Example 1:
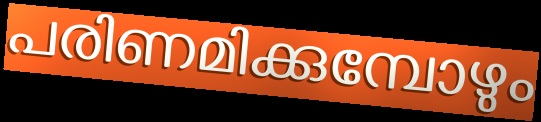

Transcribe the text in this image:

പരിണമിക്കുമ്പോഴും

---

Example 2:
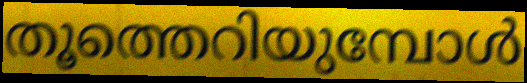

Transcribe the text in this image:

തൂത്തെറിയുമ്പോൾ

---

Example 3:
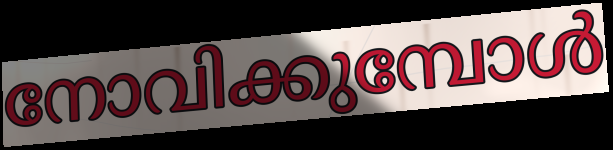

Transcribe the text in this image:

നോവിക്കുമ്പോൾ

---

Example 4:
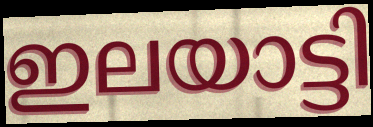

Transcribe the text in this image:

ഇലയാട്ടി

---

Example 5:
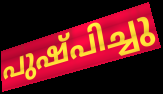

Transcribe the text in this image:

പുഷ്പിച്ചു